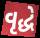
વૃદ્ધે